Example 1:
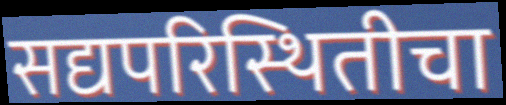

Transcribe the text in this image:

सद्यपरिस्थितीचा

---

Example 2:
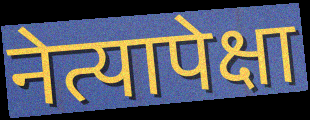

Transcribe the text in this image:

नेत्यापेक्षा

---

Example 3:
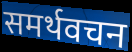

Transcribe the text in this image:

समर्थवचन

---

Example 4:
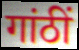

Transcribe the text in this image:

गांठीं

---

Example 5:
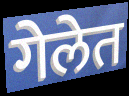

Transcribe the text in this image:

गेलेत